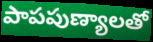
పాపపుణ్యాలతో